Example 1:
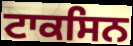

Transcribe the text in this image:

ਟਾਕਸਿਨ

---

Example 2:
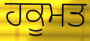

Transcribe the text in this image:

ਹਕੂਮਤ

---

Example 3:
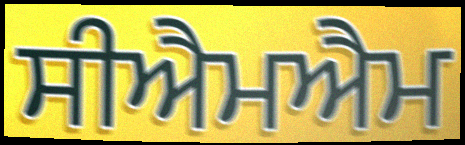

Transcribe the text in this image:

ਸੀਐਮਐਮ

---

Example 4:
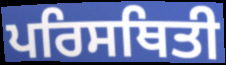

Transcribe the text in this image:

ਪਰਿਸਥਿਤੀ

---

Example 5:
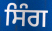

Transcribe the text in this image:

ਸਿੰਗ